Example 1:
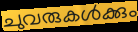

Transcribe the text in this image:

ചുവരുകൾക്കും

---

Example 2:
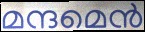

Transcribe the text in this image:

മന്ദമെൻ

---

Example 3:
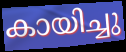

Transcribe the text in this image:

കായിച്ചു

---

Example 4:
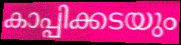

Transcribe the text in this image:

കാപ്പിക്കടയും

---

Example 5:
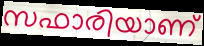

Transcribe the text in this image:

സഫാരിയാണ്